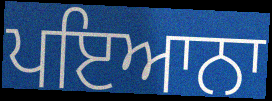
ਪਇਆਨਾ